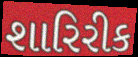
શારિરીક